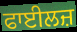
ਫਾਈਲਜ਼